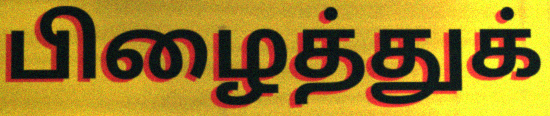
பிழைத்துக்